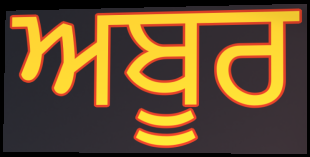
ਅਬੂਰ